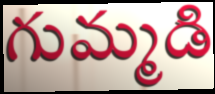
గుమ్మడి